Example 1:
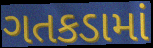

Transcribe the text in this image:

ગતકડામાં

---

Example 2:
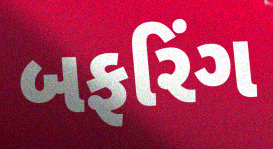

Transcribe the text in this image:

બફરિંગ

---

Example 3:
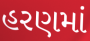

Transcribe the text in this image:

હરણમાં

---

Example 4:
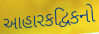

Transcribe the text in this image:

આહારકદ્વિકનો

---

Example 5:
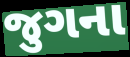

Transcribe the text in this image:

જુગના